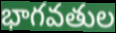
భాగవతుల